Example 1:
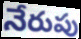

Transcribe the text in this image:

నేరుపు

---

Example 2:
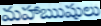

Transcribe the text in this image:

మహాఋషులు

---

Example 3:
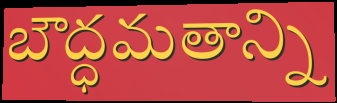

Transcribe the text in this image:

బౌద్ధమతాన్ని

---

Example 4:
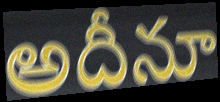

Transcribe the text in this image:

అదీనూ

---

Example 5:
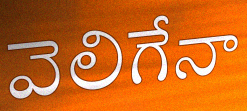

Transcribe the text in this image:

వెలిగేనా